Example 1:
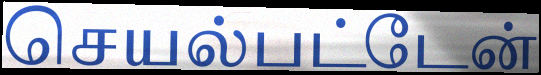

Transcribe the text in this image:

செயல்பட்டேன்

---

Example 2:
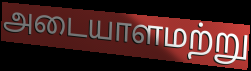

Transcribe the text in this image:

அடையாளமற்று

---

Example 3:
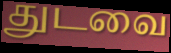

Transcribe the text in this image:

துடவை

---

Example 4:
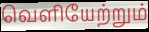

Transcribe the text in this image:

வெளியேற்றும்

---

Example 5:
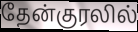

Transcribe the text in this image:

தேன்குரலில்